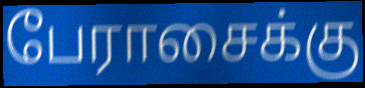
பேராசைக்கு